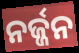
ନର୍ଜ୍ଜନ